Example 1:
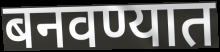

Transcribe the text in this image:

बनवण्यात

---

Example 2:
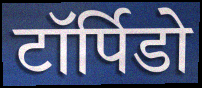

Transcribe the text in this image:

टॉर्पिडो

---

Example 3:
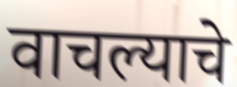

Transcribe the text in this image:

वाचल्याचे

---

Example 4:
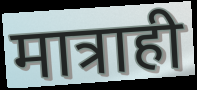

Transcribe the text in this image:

मात्राही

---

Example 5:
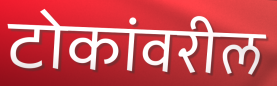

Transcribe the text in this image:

टोकांवरील